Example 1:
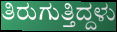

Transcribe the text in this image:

ತಿರುಗುತ್ತಿದ್ದಳು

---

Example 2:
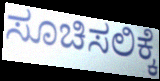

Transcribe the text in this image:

ಸೂಚಿಸಲಿಕ್ಕೆ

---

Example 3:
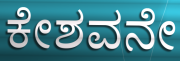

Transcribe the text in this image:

ಕೇಶವನೇ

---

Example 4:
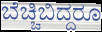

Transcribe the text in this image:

ಬೆಚ್ಚಿಬಿದ್ದರೂ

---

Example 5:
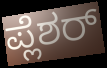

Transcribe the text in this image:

ಪ್ಲೆಶರ್